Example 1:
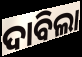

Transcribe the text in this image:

ଦାବିଲା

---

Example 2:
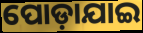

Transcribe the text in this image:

ପୋଡ଼ାଯାଇ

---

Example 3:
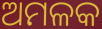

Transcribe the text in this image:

ଅମଳକ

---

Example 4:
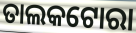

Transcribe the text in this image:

ତାଲକଟୋରା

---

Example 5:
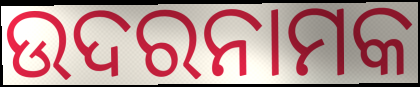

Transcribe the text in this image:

ଉଦରନାମକ